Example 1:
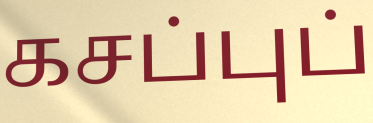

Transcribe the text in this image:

கசப்புப்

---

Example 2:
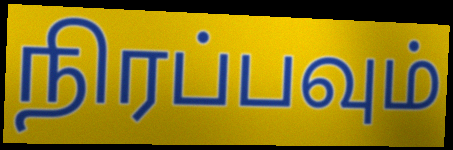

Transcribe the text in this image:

நிரப்பவும்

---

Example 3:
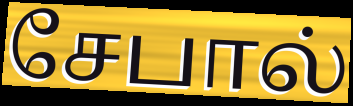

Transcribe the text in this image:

சேபால்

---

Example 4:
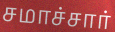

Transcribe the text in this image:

சமாச்சார்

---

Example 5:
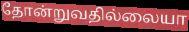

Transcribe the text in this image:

தோன்றுவதில்லையா